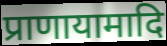
प्राणायामादि